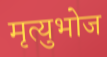
मृत्युभोज